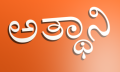
ಅತ್ಥಾನಿ